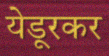
येडूरकर